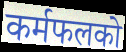
कर्मफलको